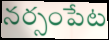
నర్సంపేట